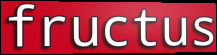
fructus